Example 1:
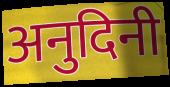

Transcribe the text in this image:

अनुदिनी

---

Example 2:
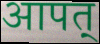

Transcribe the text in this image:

आपत्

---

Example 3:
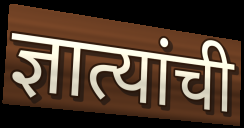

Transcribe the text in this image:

ज्ञात्यांची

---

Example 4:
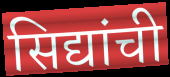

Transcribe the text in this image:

सिद्यांची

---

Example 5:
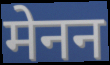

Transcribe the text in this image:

मेनन